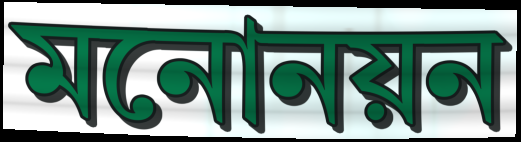
মনোনয়ন